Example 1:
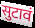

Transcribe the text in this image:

सुटावं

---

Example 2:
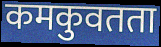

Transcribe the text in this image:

कमकुवतता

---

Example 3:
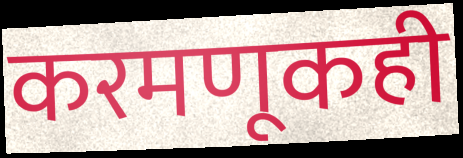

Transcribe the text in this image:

करमणूकही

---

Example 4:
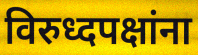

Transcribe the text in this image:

विरुध्दपक्षांना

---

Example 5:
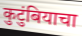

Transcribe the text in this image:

कुटुंबियाचा